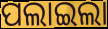
ପଲାଇଲା